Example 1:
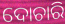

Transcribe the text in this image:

ଦୋଚାରି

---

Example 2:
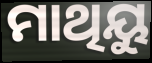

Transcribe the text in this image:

ମାଥିୟୁ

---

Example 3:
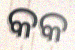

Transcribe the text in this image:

କକ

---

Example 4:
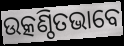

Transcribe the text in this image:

ଉତ୍କଣ୍ଠିତଭାବେ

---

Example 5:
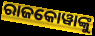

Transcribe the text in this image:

ରାଜକୋୱାଙ୍କୁ